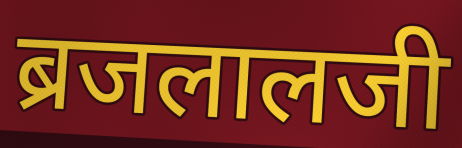
ब्रजलालजी